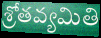
శ్రోతవ్యమితి